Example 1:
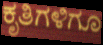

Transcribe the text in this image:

ಕೃತಿಗಳಿಗೂ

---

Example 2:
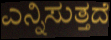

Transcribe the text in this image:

ಎನ್ನಿಸುತ್ತದೆ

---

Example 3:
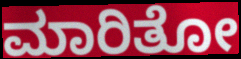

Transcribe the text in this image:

ಮಾರಿತೋ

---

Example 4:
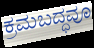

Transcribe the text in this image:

ಕ್ರಮಬದ್ಧವೂ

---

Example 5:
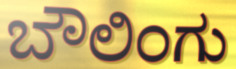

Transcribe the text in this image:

ಬೌಲಿಂಗು